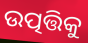
ଉତ୍ପତ୍ତିକୁ